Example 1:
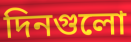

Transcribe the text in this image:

দিনগুলো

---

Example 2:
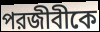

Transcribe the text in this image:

পরজীবীকে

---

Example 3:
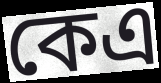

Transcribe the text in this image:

কেএ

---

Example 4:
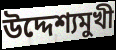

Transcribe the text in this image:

উদ্দেশ্যমুখী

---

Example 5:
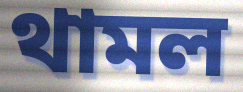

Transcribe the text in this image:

থামল